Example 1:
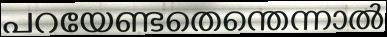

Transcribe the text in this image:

പറയേണ്ടതെന്തെന്നാൽ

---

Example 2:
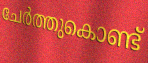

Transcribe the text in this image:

ചേർത്തുകൊണ്ട്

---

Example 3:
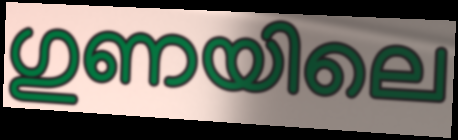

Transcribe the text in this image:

ഗുണയിലെ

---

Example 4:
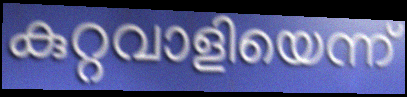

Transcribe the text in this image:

കുറ്റവാളിയെന്ന്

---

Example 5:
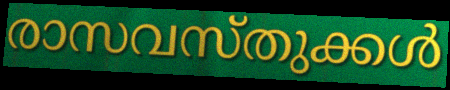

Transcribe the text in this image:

രാസവസ്തുക്കൾ